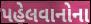
પહેલવાનોના